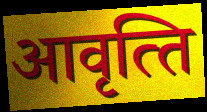
आवृत्‍ति